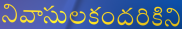
నివాసులకందరికిని